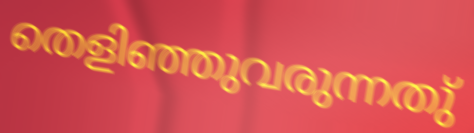
തെളിഞ്ഞുവരുന്നതു്